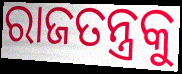
ରାଜତନ୍ତ୍ରକୁ